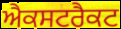
ਐਕਸਟਰੈਕਟ